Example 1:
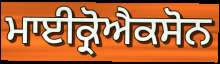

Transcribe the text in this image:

ਮਾਈਕ੍ਰੋਐਕਸੋਨ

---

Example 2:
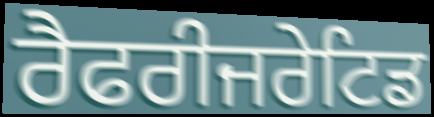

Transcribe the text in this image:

ਰੈਫਰੀਜਰੇਟਿਡ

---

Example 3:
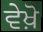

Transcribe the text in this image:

ਵੇਖ਼ੋ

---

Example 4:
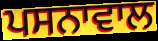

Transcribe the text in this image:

ਪਸਨਾਵਾਲ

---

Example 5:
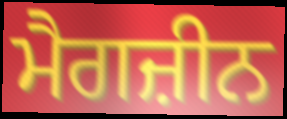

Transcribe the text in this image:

ਮੈਗਜ਼ੀਨ